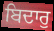
ਬਿਦਾਰੁ